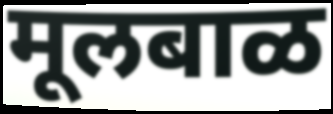
मूलबाळ